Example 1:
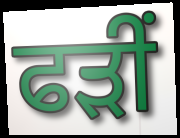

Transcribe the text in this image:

ਫੜੀਂ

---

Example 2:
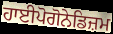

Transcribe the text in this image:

ਹਾਈਪੋਗੋਨੇਡਿਜ਼ਮ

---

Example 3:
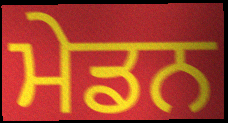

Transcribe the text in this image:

ਮੇਡਨ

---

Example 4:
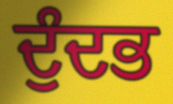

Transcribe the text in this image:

ਦੁੰਦਭ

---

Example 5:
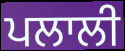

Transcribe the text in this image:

ਪਲਾਲੀ